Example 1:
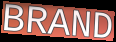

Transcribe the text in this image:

BRAND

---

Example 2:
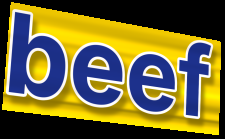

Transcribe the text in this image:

beef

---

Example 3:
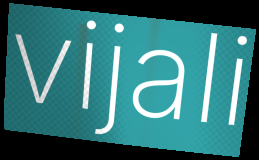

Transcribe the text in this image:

vijali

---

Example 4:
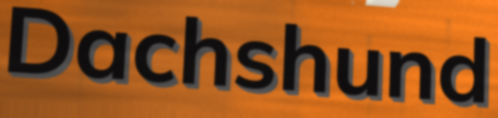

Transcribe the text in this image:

Dachshund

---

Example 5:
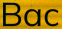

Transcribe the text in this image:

Bac